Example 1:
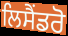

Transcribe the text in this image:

ਲਿਸੈਂਡਰੋ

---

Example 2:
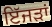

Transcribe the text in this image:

ਇੱਜੜਾਂ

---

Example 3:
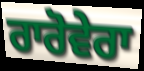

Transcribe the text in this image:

ਰਾਰੋਵੇਰਾ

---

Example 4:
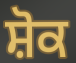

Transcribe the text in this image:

ਸ਼ੋਕ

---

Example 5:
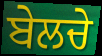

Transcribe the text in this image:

ਬੇਲਚੇ